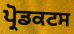
ਪ੍ਰੋਡਕਟਸ